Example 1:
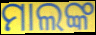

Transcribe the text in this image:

ମାଲଙ୍କ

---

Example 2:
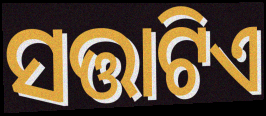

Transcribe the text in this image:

ସତ୍ତାଟିଏ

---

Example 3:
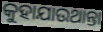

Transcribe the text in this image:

କୁହାଯାଉଥାନ୍ତା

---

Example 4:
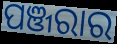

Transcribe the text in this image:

ପଞ୍ଜରାର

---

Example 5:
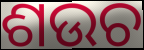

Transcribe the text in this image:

ଶଉଚ